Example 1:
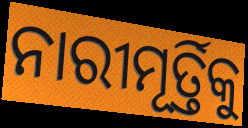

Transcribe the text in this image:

ନାରୀମୂର୍ତ୍ତିକୁ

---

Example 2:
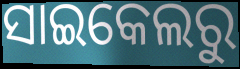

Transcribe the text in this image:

ସାଇକେଲରୁ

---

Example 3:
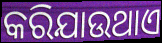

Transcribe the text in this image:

କରିଯାଉଥାଏ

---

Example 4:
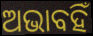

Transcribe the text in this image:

ଅଭାବହିଁ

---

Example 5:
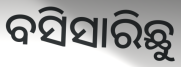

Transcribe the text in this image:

ବସିସାରିଛୁ